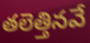
తలెత్తినవే